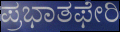
ಪ್ರಭಾತಫೇರಿ